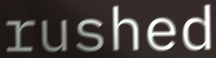
rushed